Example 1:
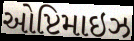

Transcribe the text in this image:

ઓપ્ટિમાઇઝ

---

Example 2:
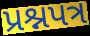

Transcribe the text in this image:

પ્રશ્નપત્ર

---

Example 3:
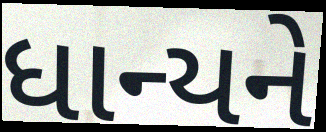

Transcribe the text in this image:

ધાન્યને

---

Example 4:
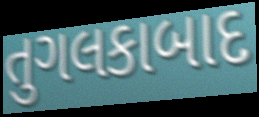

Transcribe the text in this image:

તુગલકાબાદ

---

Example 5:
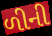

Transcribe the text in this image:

ળીની